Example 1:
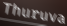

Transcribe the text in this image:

Thuruva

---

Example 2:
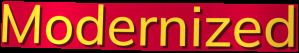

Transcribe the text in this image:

Modernized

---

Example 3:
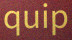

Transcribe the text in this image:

quip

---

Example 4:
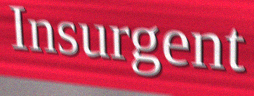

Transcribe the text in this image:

Insurgent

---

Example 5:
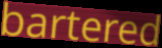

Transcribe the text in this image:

bartered